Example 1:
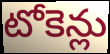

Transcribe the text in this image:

టోకెన్లు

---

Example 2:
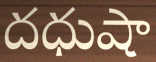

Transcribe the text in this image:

దధుషా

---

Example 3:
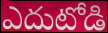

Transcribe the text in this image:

ఎదుటోడి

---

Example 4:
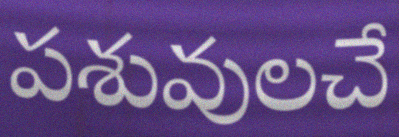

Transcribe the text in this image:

పశువులచే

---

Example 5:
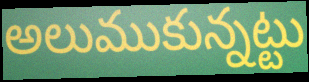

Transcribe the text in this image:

అలుముకున్నట్టు